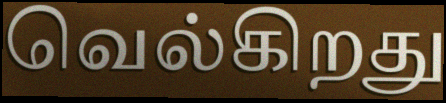
வெல்கிறது